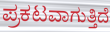
ಪ್ರಕಟವಾಗುತ್ತಿದೆ